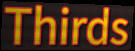
Thirds